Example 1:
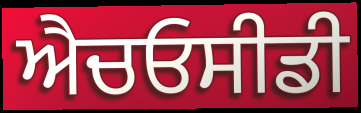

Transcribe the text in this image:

ਐਚਓਸੀਡੀ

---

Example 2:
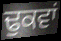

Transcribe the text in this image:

ਢੁਕਵਾਂ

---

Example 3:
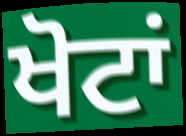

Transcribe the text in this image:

ਖੋਟਾਂ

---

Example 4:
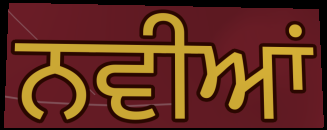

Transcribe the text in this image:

ਨਵੀਆਂ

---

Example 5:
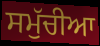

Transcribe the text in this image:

ਸਮੁੱਚੀਆ